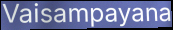
Vaisampayana